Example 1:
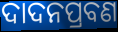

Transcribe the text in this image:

ଦାଦନପ୍ରବଣ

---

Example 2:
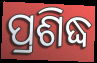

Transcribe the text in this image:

ପ୍ରଶିଦ୍ଧ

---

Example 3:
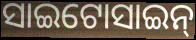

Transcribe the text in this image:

ସାଇଟୋସାଇନ୍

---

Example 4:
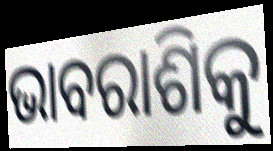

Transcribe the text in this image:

ଭାବରାଶିକୁ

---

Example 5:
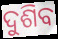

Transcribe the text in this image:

ଦୁଶିବ